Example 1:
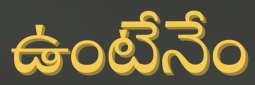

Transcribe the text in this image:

ఉంటేనేం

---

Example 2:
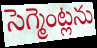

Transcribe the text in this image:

సెగ్మెంట్లను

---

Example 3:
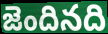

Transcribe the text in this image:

జెందినది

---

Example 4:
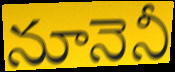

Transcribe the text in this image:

నూనెనీ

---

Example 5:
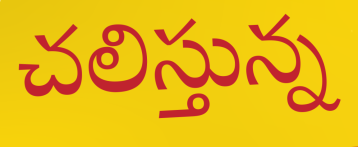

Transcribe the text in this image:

చలిస్తున్న